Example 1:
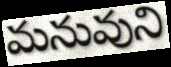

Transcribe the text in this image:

మనువుని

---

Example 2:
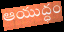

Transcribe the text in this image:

ఆయుద్ధం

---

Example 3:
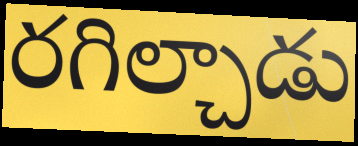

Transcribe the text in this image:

రగిల్చాడు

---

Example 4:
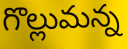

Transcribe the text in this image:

గొల్లుమన్న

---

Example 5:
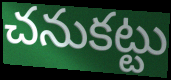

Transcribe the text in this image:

చనుకట్టు